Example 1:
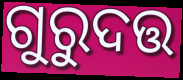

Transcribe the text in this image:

ଗୁରୁଦତ୍ତ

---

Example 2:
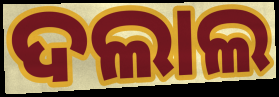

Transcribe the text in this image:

ଦଲାଲ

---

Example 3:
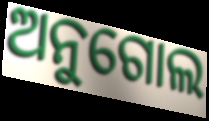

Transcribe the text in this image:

ଅନୁଗୋଲ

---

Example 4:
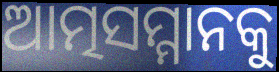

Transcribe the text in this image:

ଆତ୍ମସମ୍ମାନକୁ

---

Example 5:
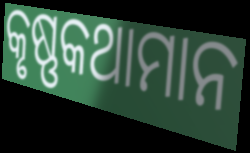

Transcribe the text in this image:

କୃଷ୍ଣକଥାମାନ